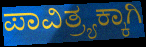
ಪಾವಿತ್ರ್ಯಕ್ಕಾಗಿ